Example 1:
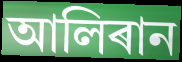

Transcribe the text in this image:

আলিৰান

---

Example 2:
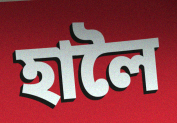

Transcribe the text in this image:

হালৈ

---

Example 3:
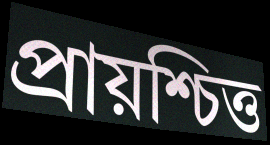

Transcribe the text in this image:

প্ৰায়শ্চিত্ত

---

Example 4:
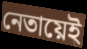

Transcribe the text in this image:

নেতায়েই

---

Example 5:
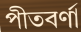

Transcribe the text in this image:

পীতবৰ্ণা